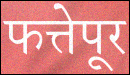
फत्तेपूर